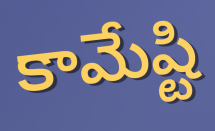
కామేష్టి